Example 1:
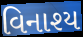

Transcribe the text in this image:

વિનાશ્ય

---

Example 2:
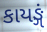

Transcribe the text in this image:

કાયઙ્ગં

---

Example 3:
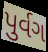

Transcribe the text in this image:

પુર્વગ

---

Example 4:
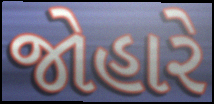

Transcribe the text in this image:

જોહારે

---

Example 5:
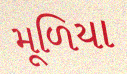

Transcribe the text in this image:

મૂળિયા